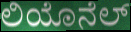
ಲಿಯೊನೆಲ್